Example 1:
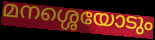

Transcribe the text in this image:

മനശ്ശെയോടും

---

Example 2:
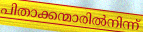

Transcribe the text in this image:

പിതാക്കന്മാരിൽനിന്ന്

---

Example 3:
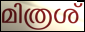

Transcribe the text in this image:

മിത്രശ്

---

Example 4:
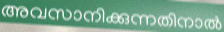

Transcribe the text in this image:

അവസാനിക്കുന്നതിനാൽ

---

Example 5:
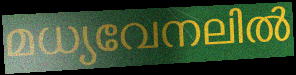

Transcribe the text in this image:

മധ്യവേനലിൽ